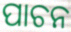
ପାଚନ